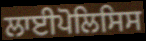
ਲਾਈਪੋਲਿਸਿਸ